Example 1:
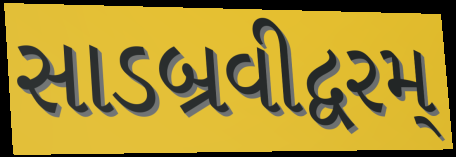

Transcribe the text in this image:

સાડબ્રવીદ્વરમ્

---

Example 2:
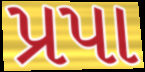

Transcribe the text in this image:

પ્રપા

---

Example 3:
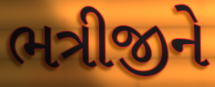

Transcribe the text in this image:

ભત્રીજીને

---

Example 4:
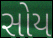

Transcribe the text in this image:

સોય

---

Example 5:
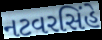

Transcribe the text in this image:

નટવરસિંહે